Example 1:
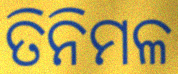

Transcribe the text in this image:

ତିନିମଳ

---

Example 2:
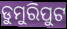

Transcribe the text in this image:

ଡୁମୁରିପୁଟ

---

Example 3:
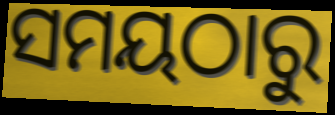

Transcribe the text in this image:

ସମୟଠାରୁ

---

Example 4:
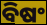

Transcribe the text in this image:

ବିଷଂ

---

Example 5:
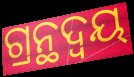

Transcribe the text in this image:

ଗ୍ରନ୍ଥଦ୍ଵୟ